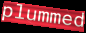
plummed